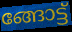
ങ്ങോട്ട്